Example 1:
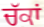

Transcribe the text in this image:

ਚੱਕਾਂ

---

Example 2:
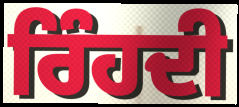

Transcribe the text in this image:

ਰਿੰਹਦੀ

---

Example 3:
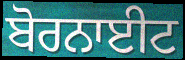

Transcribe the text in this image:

ਬੋਰਨਾਈਟ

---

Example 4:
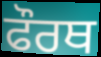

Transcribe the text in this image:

ਫੌਰਥ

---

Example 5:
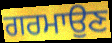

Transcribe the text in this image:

ਗਰਮਾਉਣ